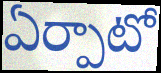
ఏర్పాటో